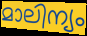
മാലിന്യം